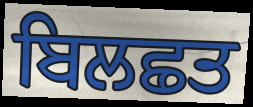
ਬਿਲਛਤ